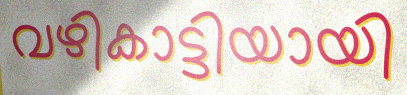
വഴികാട്ടിയായി